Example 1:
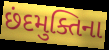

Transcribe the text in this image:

છંદમુક્તિના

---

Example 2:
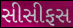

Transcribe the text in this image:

સીસીફસ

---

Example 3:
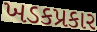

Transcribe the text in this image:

ખડકપ્રકાર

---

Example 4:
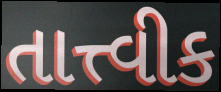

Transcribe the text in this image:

તાત્ત્વીક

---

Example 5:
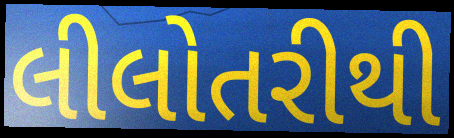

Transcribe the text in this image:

લીલોતરીથી